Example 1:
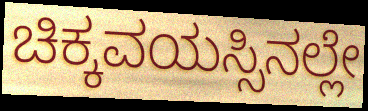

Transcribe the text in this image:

ಚಿಕ್ಕವಯಸ್ಸಿನಲ್ಲೇ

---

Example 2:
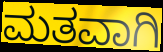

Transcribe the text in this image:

ಮತವಾಗಿ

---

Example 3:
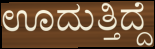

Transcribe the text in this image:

ಊದುತ್ತಿದ್ದೆ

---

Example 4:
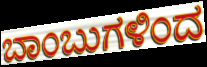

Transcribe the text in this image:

ಬಾಂಬುಗಳಿಂದ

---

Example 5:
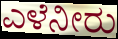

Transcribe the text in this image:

ಎಳೆನೀರು